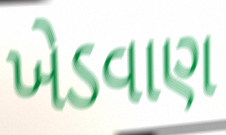
ખેડવાણ